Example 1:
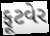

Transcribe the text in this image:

ફૂટવેર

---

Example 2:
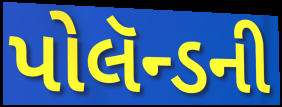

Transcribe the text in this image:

પોલૅન્ડની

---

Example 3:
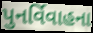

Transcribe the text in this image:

પુનર્વિવાહના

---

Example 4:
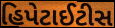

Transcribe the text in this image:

હિપેટાઈટીસ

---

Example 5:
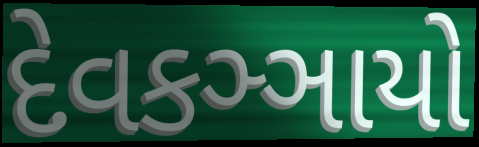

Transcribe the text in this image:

દેવકઞ્ઞાયો